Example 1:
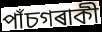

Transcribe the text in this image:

পাঁচগৰাকী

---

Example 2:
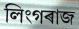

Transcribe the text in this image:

লিংগৰাজ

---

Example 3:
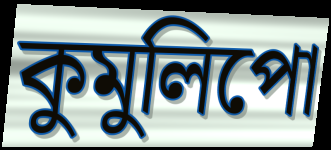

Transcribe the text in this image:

কুমুলিপো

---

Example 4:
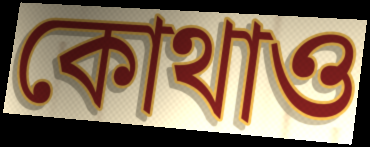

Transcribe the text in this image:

কোথাও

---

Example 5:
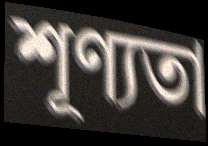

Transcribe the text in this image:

শূণ্যতা